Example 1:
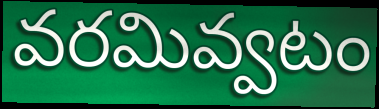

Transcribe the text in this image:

వరమివ్వటం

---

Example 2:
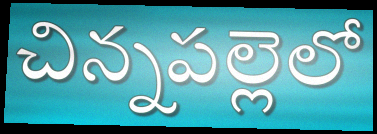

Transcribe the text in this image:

చిన్నపల్లెలో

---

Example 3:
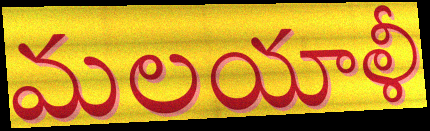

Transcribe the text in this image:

మలయాళీ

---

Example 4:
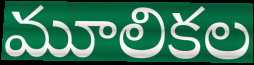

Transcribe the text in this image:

మూలికల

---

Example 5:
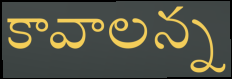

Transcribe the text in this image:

కావాలన్న